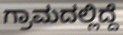
ಗ್ರಾಮದಲ್ಲಿದ್ದೆ